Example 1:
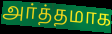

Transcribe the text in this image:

அர்த்தமாக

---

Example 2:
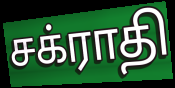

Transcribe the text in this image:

சக்ராதி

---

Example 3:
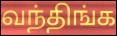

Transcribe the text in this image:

வந்திங்க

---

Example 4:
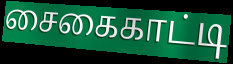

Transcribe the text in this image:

சைகைகாட்டி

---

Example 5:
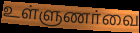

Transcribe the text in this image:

உள்ளுணர்வை